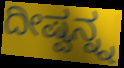
ದೀಷ್ವನ್ನ್ನ